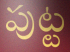
పుట్ట